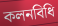
কলনবিধি